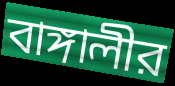
বাঙ্গালীর